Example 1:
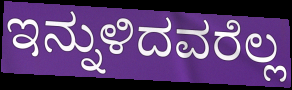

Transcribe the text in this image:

ಇನ್ನುಳಿದವರೆಲ್ಲ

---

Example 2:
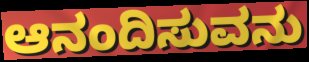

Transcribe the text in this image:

ಆನಂದಿಸುವನು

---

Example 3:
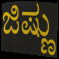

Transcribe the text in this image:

ಜಿಷ್ಣು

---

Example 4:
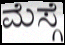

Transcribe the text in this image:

ಮೆಸ್ಗೆ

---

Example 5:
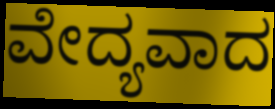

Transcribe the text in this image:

ವೇದ್ಯವಾದ